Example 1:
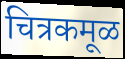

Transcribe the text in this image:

चित्रकमूळ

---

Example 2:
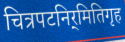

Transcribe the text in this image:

चित्रपटनिर्मितिगृह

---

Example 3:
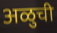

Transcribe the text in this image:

अळुची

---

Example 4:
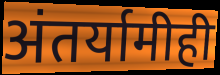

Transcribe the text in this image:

अंतर्यामीही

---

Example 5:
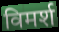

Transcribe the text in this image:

विमर्श